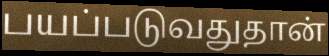
பயப்படுவதுதான்